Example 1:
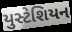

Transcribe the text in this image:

યુસ્ટેશિયન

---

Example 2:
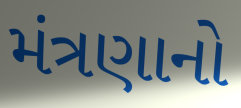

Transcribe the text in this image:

મંત્રણાનો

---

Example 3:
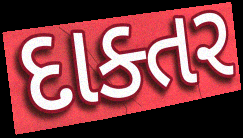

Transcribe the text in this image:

દાક્તર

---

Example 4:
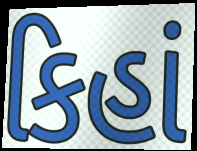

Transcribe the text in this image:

કિહાં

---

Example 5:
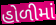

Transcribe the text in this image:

હોળીમાં